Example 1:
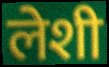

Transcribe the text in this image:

लेशी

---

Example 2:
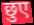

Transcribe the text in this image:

छुए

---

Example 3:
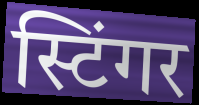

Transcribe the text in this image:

स्टिंगर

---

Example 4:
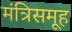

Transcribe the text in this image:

मंत्रिसमूह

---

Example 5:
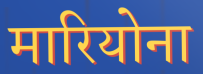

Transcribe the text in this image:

मारियोना